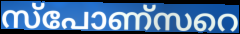
സ്പോണ്സറെ